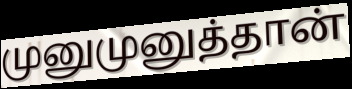
முனுமுனுத்தான்